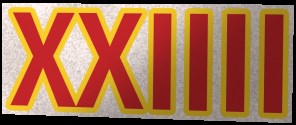
XXIIII